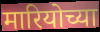
मारियोच्या